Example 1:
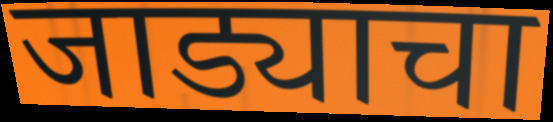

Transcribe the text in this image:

जाड्याचा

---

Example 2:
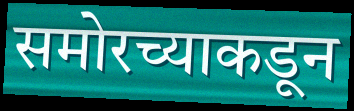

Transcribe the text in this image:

समोरच्याकडून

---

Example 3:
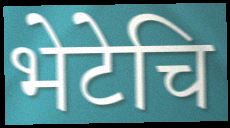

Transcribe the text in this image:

भेटेचि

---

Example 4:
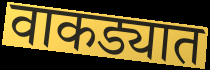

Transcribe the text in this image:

वाकड्यात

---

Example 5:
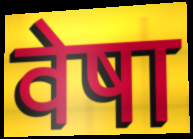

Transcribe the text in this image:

वेषा